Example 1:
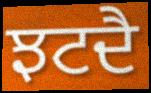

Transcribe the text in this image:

ਝਟਦੈ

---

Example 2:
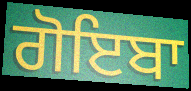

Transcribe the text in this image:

ਗੋਇਬਾ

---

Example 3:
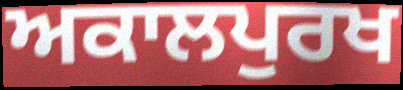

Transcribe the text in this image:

ਅਕਾਲਪੁਰਖ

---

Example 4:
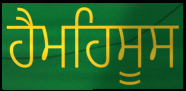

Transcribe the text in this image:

ਹੈਮਹਿਸੂਸ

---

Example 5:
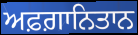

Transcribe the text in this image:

ਅਫ਼ਗ਼ਾਨਿਤਾਨ